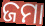
ଜମା